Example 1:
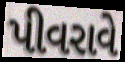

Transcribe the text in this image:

પીવરાવે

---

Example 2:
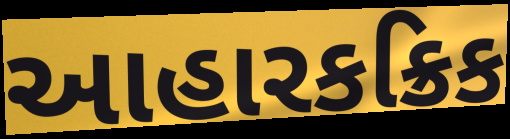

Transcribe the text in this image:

આહારકક્રિક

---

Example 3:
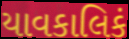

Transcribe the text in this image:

યાવકાલિકં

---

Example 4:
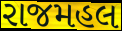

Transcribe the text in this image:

રાજમહલ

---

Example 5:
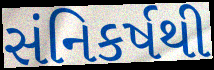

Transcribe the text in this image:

સંનિકર્ષથી